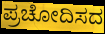
ಪ್ರಚೋದಿಸದ